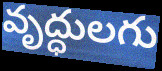
వృద్ధులగు